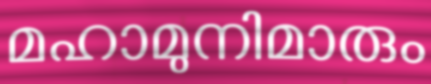
മഹാമുനിമാരും